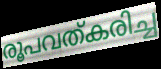
രൂപവത്കരിച്ച